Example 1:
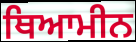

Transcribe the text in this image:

ਥਿਆਮੀਨ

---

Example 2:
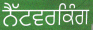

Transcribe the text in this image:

ਨੈੱਟਵਰਕਿੰਗ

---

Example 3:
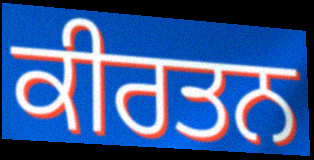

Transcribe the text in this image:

ਕੀਰਤਨ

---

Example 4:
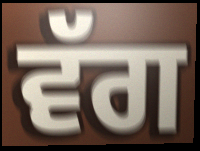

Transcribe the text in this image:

ਵੱਗ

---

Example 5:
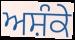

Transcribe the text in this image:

ਅਸ਼ੰਕੇ